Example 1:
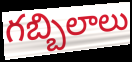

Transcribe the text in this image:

గబ్బిలాలు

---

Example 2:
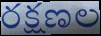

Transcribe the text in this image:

రక్షణల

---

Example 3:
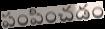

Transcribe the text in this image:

పంపించడం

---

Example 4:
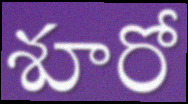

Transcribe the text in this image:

శూరో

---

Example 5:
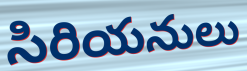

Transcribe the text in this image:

సిరియనులు